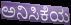
ಅನಿಸಿಕೆಯ